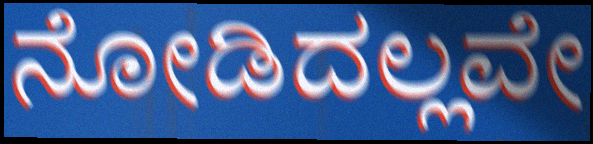
ನೋಡಿದಲ್ಲವೇ